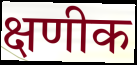
क्षणीक